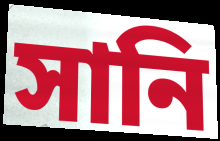
সানি